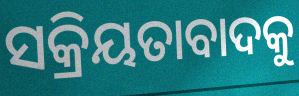
ସକ୍ରିୟତାବାଦକୁ